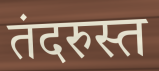
तंदरुस्त